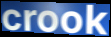
crook